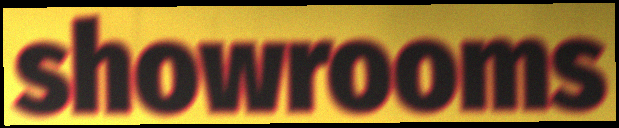
showrooms